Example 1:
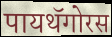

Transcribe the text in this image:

पायथॅगोरस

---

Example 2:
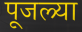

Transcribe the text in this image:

पूजल्या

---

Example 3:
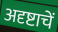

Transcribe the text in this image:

अदृष्टाचें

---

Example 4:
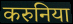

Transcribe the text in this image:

करुनिया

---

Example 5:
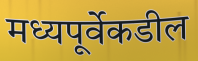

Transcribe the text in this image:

मध्यपूर्वेकडील